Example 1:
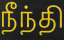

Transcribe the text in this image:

நீந்தி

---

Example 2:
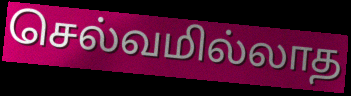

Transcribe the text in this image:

செல்வமில்லாத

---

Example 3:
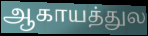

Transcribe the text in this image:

ஆகாயத்துல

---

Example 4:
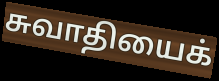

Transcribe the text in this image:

சுவாதியைக்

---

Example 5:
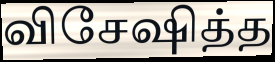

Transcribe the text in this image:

விசேஷித்த